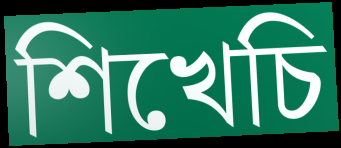
শিখেচি